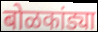
बोळकांड्या